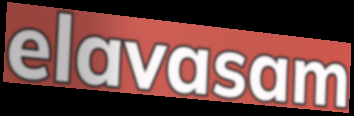
elavasam